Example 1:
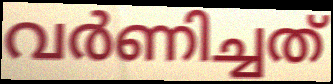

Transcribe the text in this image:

വർണിച്ചത്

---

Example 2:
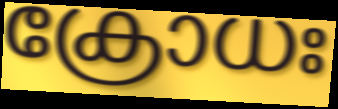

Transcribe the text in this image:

ക്രോധഃ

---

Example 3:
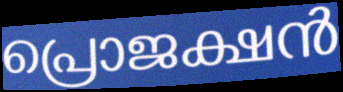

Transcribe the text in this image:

പ്രൊജക്ഷൻ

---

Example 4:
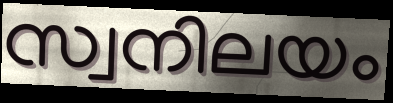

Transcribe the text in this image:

സ്വനിലയം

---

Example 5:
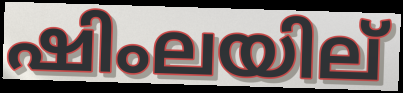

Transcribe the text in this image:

ഷിംലയില്